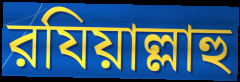
রযিয়াল্লাহু